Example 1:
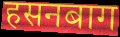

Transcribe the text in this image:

हसनबाग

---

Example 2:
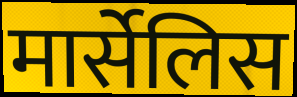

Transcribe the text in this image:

मार्सेलिस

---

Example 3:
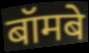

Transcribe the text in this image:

बॉमबे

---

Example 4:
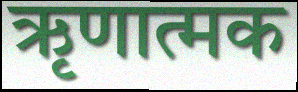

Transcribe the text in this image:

ऋृणात्मक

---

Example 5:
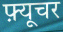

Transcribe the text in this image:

फ़्यूचर